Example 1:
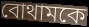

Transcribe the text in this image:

বোথামকে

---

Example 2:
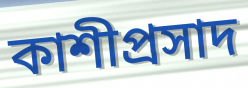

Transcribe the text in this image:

কাশীপ্রসাদ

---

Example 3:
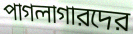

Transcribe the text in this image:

পাগলাগারদের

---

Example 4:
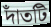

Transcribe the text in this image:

দাঁতটি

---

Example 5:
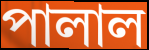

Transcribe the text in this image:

পালাল